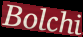
Bolchi